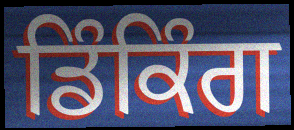
ਡਿੰਕਿੰਗ